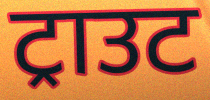
ट्राउट